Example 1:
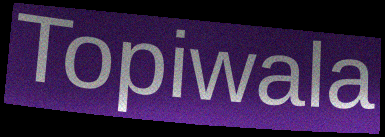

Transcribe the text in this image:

Topiwala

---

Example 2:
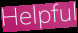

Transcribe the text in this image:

Helpful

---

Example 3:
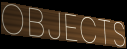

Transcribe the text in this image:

OBJECTS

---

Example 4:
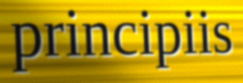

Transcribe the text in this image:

principiis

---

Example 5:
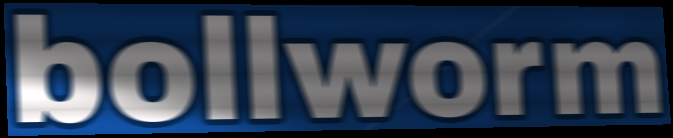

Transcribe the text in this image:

bollworm